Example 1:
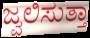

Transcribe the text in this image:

ಜ್ವಲಿಸುತ್ತಾ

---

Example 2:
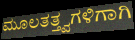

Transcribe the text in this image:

ಮೂಲತತ್ತ್ವಗಳಿಗಾಗಿ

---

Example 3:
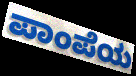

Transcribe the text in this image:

ಪಾಂಪೆಯ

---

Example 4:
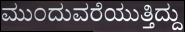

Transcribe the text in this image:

ಮುಂದುವರೆಯುತ್ತಿದ್ದು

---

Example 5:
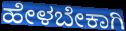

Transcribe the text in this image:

ಹೇಳಬೇಕಾಗಿ